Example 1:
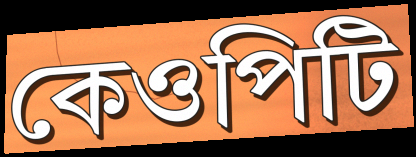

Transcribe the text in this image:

কেওপিটি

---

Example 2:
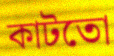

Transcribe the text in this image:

কাটতো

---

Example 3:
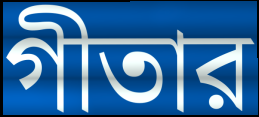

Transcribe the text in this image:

গীতার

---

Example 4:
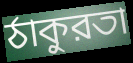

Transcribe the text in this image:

ঠাকুরতা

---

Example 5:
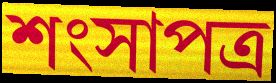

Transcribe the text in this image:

শংসাপত্র